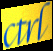
ctrl